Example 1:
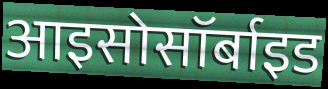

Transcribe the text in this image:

आइसोसॉर्बाइड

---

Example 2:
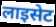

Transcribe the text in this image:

लाइसेट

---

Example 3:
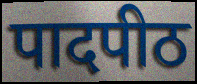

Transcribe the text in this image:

पादपीठ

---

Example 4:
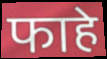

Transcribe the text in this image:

फाहे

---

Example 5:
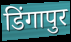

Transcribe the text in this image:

डिंगापुर